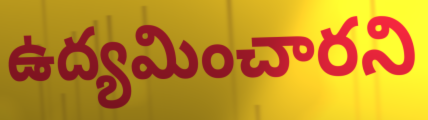
ఉద్యమించారని